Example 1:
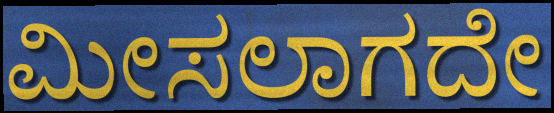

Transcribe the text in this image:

ಮೀಸಲಾಗದೇ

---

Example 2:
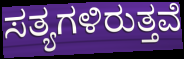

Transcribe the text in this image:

ಸತ್ಯಗಳಿರುತ್ತವೆ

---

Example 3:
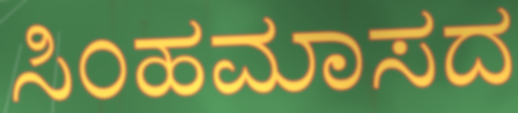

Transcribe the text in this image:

ಸಿಂಹಮಾಸದ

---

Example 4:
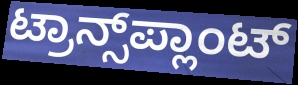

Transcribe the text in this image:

ಟ್ರಾನ್ಸ್‌ಪ್ಲಾಂಟ್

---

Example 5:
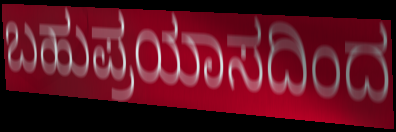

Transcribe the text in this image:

ಬಹುಪ್ರಯಾಸದಿಂದ